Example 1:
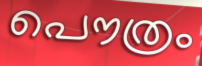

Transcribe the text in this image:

പൌത്രം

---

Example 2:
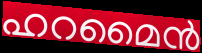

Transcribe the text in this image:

ഹറമൈൻ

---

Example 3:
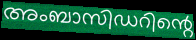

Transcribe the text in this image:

അംബാസിഡറിന്റെ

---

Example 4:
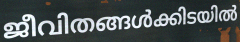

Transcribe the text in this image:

ജീവിതങ്ങൾക്കിടയിൽ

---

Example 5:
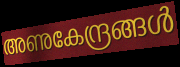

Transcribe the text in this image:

അണുകേന്ദ്രങ്ങൾ